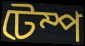
টেম্প